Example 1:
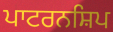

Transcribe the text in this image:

ਪਾਟਰਨਸ਼ਿਪ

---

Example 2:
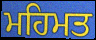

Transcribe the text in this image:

ਮਹਿਮਤ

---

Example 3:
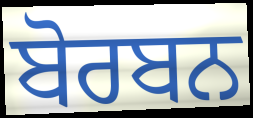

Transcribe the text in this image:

ਬੋਰਬਨ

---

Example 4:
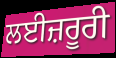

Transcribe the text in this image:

ਲਈਜ਼ਰੂਰੀ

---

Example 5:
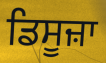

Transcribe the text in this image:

ਡਿਸੂਜ਼ਾ